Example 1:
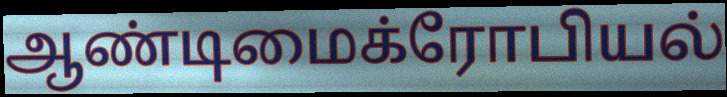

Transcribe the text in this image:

ஆண்டிமைக்ரோபியல்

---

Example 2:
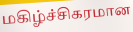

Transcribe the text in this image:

மகிழ்ச்சிகரமான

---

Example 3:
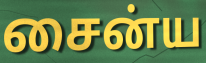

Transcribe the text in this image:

சைன்ய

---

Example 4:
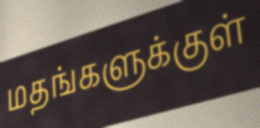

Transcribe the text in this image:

மதங்களுக்குள்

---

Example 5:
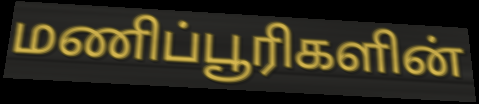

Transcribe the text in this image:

மணிப்பூரிகளின்